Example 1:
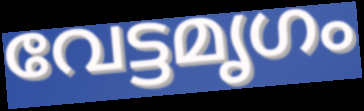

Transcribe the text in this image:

വേട്ടമൃഗം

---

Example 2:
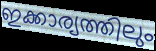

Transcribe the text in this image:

ഇക്കാര്യത്തിലും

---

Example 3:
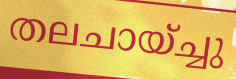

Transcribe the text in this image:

തലചായ്ച്ചു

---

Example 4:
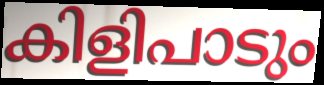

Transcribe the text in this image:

കിളിപാടും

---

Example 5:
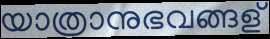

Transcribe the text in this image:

യാത്രാനുഭവങ്ങള്